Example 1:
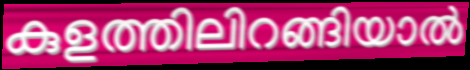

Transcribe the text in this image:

കുളത്തിലിറങ്ങിയാൽ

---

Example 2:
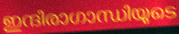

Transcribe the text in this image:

ഇന്ദിരാഗാന്ധിയുടെ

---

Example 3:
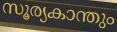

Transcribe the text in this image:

സൂര്യകാന്തും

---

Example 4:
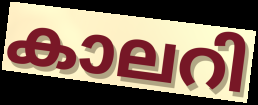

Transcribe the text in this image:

കാലറി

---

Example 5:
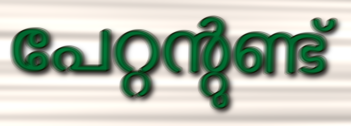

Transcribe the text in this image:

പേറ്റന്റുണ്ട്